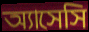
অ্যাসেসি